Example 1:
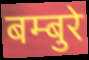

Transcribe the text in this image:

बम्बुरे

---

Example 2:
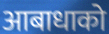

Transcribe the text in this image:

आबाधाको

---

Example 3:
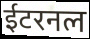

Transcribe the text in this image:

ईटरनल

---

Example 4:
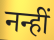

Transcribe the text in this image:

नन्हीं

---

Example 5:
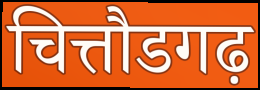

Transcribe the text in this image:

चित्तौडगढ़